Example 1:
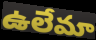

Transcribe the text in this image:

ఉలేమా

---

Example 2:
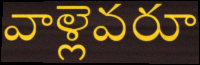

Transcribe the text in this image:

వాళ్లెవరూ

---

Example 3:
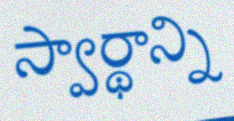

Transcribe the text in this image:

స్వార్థాన్ని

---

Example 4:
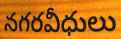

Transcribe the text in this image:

నగరవీధులు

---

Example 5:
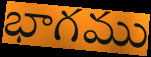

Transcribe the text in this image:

భాగము